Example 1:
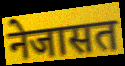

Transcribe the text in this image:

नेजासत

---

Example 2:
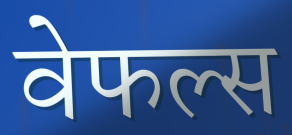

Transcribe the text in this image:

वेफल्स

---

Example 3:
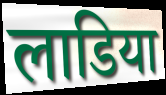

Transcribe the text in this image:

लाडिया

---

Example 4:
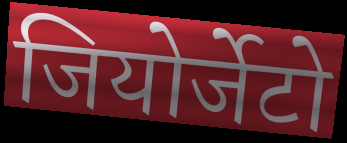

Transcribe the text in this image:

जियोर्जेटो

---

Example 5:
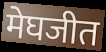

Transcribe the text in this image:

मेघजीत